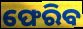
ଫେରିବ